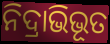
ନିଦ୍ରାଭିଭୂତ